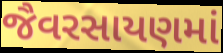
જૈવરસાયણમાં